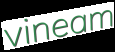
vineam